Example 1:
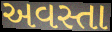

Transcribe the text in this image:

અવસ્તા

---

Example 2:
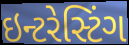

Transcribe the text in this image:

ઇન્ટરેસ્ટિંગ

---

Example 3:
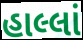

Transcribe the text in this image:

હાલ્લાં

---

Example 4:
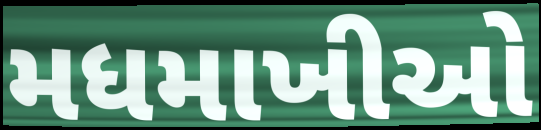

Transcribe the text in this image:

મધમાખીઓ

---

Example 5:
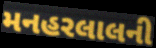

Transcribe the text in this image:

મનહરલાલની